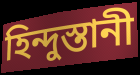
হিন্দুস্তানী